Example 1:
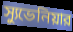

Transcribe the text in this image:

স্যুভেনিয়ার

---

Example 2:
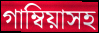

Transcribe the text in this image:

গাম্বিয়াসহ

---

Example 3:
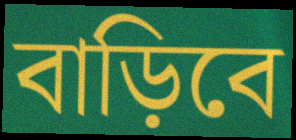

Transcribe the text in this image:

বাড়িবে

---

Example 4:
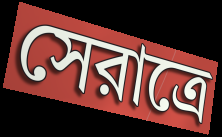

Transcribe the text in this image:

সেরাত্রে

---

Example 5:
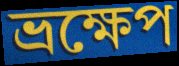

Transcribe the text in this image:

ভ্রক্ষেপ